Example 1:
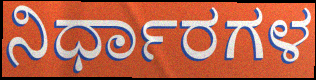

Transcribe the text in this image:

ನಿರ್ಧಾರಗಳ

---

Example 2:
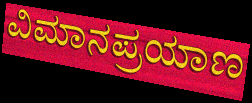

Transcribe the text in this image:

ವಿಮಾನಪ್ರಯಾಣ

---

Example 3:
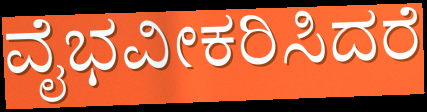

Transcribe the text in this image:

ವೈಭವೀಕರಿಸಿದರೆ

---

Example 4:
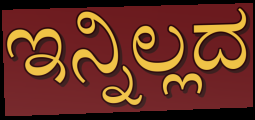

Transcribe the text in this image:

ಇನ್ನಿಲ್ಲದ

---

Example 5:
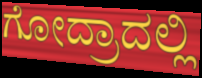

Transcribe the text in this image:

ಗೋದ್ರಾದಲ್ಲಿ